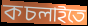
কচলাইতে